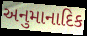
અનુમાનાદિક